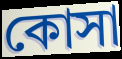
কোসা